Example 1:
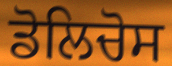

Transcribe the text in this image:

ਡੋਲਿਚੋਸ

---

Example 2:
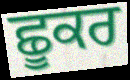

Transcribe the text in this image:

ਛੂਕਰ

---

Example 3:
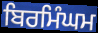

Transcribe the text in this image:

ਬਿਰਮਿੰਘਮ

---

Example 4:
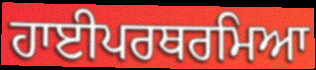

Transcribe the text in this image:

ਹਾਈਪਰਥਰਮਿਆ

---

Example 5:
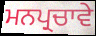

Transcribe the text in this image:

ਮਨਪ੍ਰਚਾਵੇ